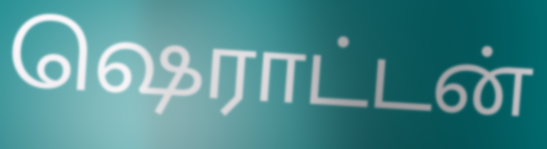
ஷெராட்டன்